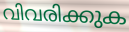
വിവരിക്കുക